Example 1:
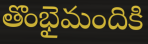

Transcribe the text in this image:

తొంభైమందికి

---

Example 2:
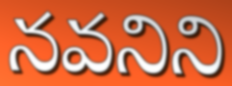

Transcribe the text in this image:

నవనిని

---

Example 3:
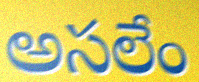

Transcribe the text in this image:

అసలేం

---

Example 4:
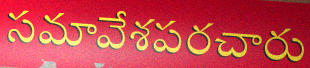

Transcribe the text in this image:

సమావేశపరచారు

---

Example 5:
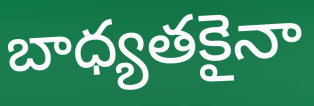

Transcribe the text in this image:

బాధ్యతకైనా